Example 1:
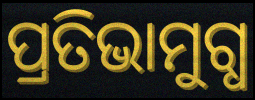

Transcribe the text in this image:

ପ୍ରତିଭାମୁଗ୍ଧ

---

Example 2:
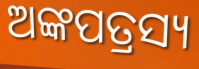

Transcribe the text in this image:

ଅଙ୍କପତ୍ରସ୍ୟ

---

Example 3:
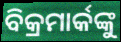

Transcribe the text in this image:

ବିକ୍ରମାର୍କଙ୍କୁ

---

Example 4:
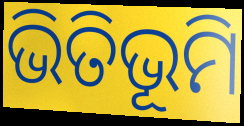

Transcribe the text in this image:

ଭିତିଭୂମି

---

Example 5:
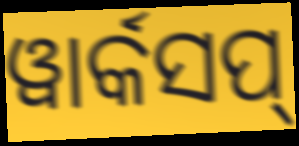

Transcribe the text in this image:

ୱାର୍କସପ୍